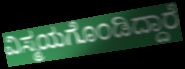
ವಿಸ್ಮಯಗೊಂಡಿದ್ದಾರೆ